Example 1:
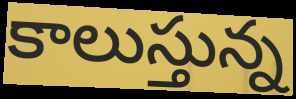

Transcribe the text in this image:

కాలుస్తున్న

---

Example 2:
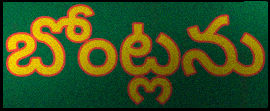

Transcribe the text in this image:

బోంట్లను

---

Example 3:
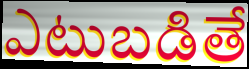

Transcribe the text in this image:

ఎటుబడితే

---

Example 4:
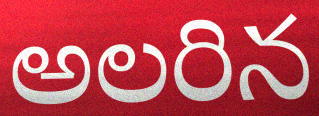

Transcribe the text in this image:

అలరిన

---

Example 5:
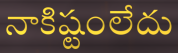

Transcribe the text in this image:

నాకిష్టంలేదు